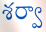
శర్వా